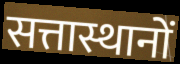
सत्तास्थानों